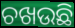
ଚଖଉଛି